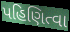
પહિણિત્વા